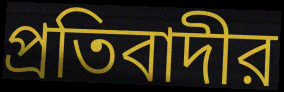
প্রতিবাদীর